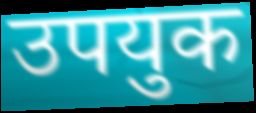
उपयुक